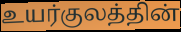
உயர்குலத்தின்